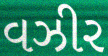
વઝીર